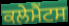
ਕਲੇਮੈਂਟਸ